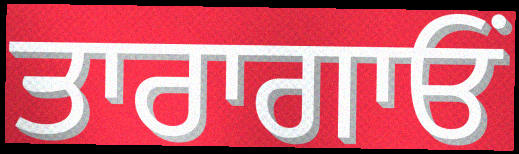
ਤਾਰਾਗਾਓਂ